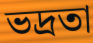
ভদ্ৰতা